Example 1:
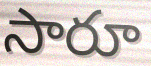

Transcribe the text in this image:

సారూ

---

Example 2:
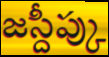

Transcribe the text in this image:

జస్దీప్కు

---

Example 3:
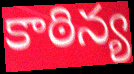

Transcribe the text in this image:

కాఠిన్య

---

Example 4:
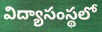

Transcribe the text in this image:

విద్యాసంస్థలో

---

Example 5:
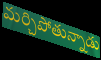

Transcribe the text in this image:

మర్చిపోతున్నాడు